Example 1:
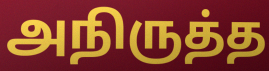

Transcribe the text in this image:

அநிருத்த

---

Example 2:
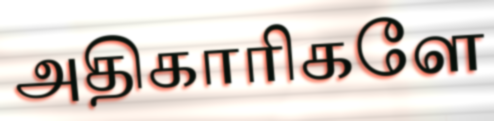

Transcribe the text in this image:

அதிகாரிகளே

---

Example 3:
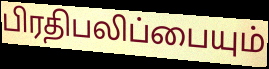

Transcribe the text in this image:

பிரதிபலிப்பையும்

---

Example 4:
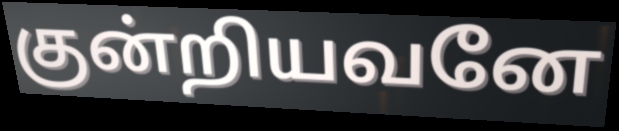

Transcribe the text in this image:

குன்றியவனே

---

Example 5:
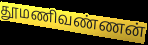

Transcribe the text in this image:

தூமணிவண்ணன்